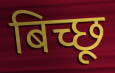
बिच्छू